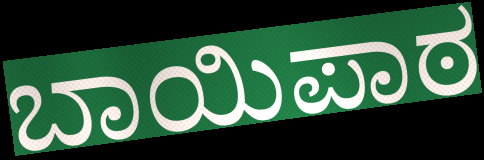
ಬಾಯಿಪಾಠ